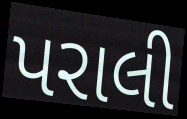
પરાલી